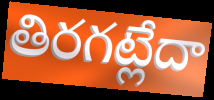
తిరగట్లేదా